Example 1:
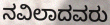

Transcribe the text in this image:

ನವಿಲಾದವರು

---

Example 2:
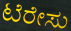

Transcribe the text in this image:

ಟೆರೇಸು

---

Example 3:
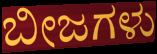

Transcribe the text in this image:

ಬೀಜಗಳು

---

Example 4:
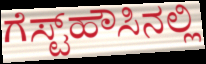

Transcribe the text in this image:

ಗೆಸ್ಟ್‌ಹೌಸಿನಲ್ಲಿ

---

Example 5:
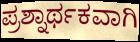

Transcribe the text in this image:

ಪ್ರಶ್ನಾರ್ಥಕವಾಗಿ